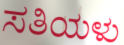
ಸತಿಯಳು